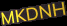
MKDNH